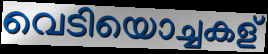
വെടിയൊച്ചകള്